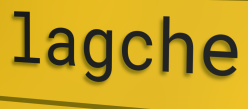
lagche